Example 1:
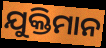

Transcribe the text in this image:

ଯୁକ୍ତିମାନ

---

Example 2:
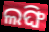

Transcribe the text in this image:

ଲଙ୍ଘି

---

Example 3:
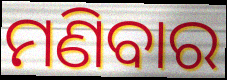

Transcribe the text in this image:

ମଣିବାର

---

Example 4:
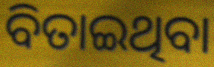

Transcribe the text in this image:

ବିତାଇଥିବା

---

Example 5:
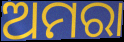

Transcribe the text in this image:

ଅମରା